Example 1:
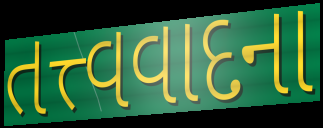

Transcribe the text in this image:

તત્ત્વવાદના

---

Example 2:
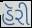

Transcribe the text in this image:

હૅરી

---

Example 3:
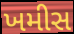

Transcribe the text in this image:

ખમીસ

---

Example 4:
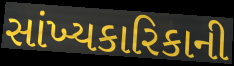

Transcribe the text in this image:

સાંખ્યકારિકાની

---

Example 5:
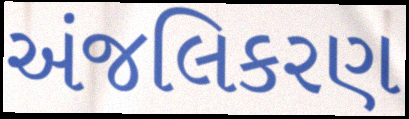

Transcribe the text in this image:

અંજલિકરણ